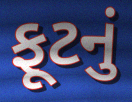
ફૂટનું